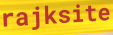
rajksite